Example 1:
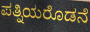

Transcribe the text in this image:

ಪತ್ನಿಯರೊಡನೆ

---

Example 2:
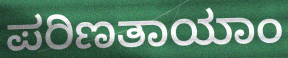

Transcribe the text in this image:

ಪರಿಣತಾಯಾಂ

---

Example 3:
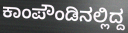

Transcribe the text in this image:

ಕಾಂಪೌಂಡಿನಲ್ಲಿದ್ದ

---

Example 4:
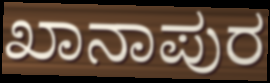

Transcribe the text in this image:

ಖಾನಾಪುರ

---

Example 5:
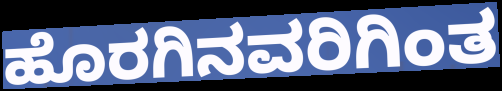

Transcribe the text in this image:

ಹೊರಗಿನವರಿಗಿಂತ